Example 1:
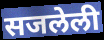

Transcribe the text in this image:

सजलेली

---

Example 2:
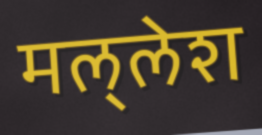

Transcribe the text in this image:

मल्लेश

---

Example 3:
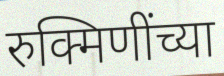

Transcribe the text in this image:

रुक्मिणींच्या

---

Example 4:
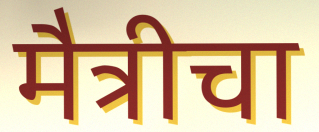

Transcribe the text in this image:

मैत्रीचा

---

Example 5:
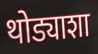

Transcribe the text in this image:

थोड्याशा